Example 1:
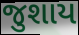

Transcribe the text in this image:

જુશાય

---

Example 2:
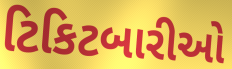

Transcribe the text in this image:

ટિકિટબારીઓ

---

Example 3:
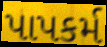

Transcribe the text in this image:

પાપકર્મ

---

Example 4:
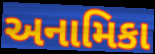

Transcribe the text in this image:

અનામિકા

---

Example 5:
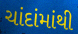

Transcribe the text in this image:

ચાંદાંમાંથી